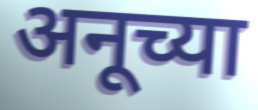
अनूच्या